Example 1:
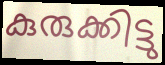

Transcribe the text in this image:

കുരുക്കിട്ടു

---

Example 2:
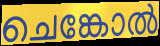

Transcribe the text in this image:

ചെങ്കോൽ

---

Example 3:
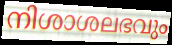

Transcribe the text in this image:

നിശാശലഭവും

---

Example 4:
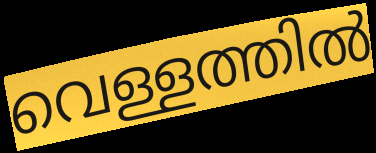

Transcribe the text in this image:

വെള്ളത്തിൽ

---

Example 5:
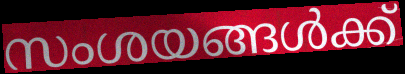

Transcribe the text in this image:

സംശയങ്ങൾക്ക്